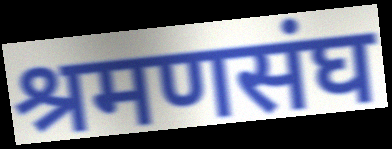
श्रमणसंघ